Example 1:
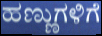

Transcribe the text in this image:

ಹಣ್ಣುಗಳಿಗೆ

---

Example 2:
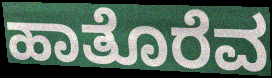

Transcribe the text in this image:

ಹಾತೊರೆವ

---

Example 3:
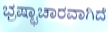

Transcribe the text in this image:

ಭ್ರಷ್ಟಾಚಾರವಾಗಿದೆ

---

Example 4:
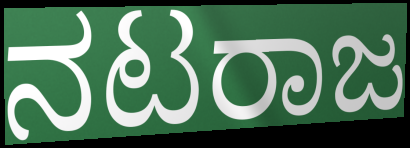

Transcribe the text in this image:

ನಟರಾಜ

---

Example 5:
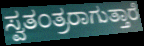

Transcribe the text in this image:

ಸ್ವತಂತ್ರರಾಗುತ್ತಾರೆ